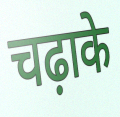
चढ़ाके